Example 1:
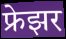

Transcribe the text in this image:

फ्रेझर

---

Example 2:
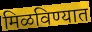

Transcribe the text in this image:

मिळविण्यात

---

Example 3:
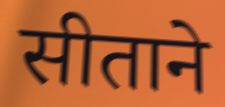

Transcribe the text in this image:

सीताने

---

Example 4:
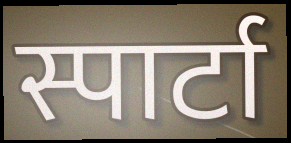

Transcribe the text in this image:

स्पार्टा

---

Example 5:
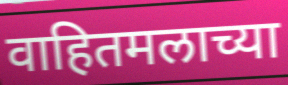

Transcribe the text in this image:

वाहितमलाच्या